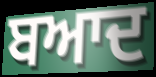
ਬਆਦ